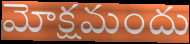
మోక్షమందు